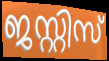
ജസ്റ്റിസ്